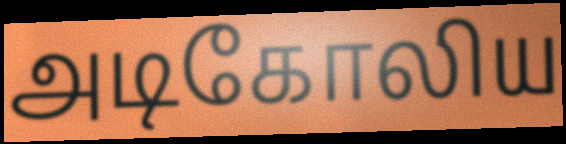
அடிகோலிய